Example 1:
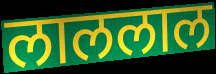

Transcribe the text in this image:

लाललाल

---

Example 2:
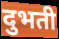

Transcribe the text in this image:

दुभती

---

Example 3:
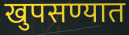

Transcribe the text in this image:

खुपसण्यात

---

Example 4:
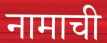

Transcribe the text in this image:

नामाची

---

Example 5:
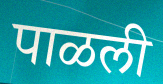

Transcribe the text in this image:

पाळली